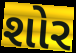
શોર